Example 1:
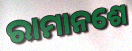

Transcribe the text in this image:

ରାମାନଶେ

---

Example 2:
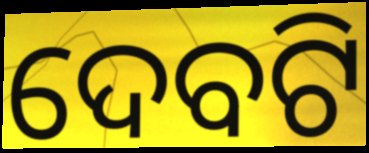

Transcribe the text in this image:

ଦେବଟି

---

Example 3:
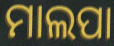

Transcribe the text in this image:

ମାଲପା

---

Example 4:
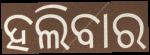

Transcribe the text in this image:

ହଲିବାର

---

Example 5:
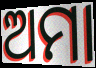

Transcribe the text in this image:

ଅମା